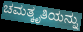
ಚಮತ್ಕೃತಿಯನ್ನು